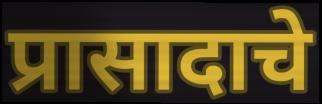
प्रासादाचे